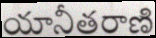
యానీతరాణి